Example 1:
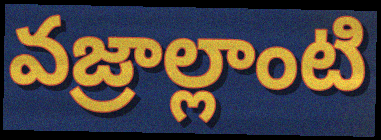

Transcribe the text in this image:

వజ్రాల్లాంటి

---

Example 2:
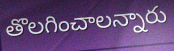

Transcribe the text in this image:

తొలగించాలన్నారు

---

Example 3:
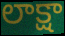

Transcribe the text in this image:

లాక్షా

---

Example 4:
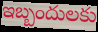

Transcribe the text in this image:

ఇబ్బందులకు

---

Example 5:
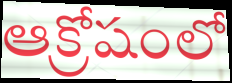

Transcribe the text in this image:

ఆక్రోషంలో